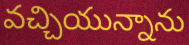
వచ్చియున్నాను